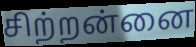
சிற்றன்னை